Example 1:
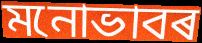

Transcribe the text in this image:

মনোভাবৰ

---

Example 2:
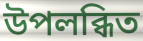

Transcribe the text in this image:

উপলব্ধিত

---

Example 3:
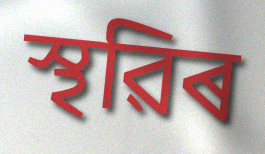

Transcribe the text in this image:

স্থৱিৰ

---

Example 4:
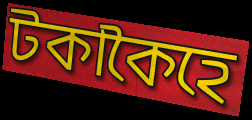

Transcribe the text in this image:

টকাকৈহে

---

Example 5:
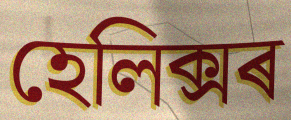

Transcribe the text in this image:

হেলিক্সৰ